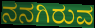
ನನಗಿರುವ